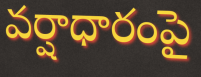
వర్షాధారంపై